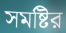
সমষ্টির